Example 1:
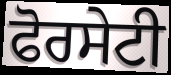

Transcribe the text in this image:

ਫੋਰਸੇਟੀ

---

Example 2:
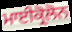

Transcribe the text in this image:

ਮਾਈਕ੍ਰੋਲੋਨ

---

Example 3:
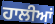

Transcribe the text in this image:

ਹਾਲੀਆਂ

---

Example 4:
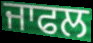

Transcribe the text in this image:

ਜਾਫਲ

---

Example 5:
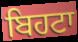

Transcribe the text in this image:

ਬਿਹਟਾ